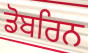
ਡੋਬਰਿਨ